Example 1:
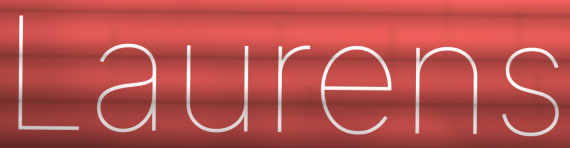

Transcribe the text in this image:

Laurens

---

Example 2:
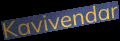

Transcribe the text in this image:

Kavivendar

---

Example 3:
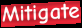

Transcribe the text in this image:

Mitigate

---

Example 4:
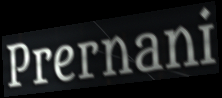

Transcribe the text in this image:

Prernani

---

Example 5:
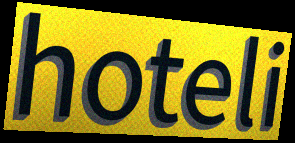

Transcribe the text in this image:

hoteli